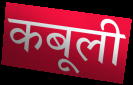
कबूली